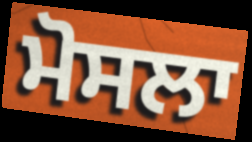
ਮੋਸਲਾ